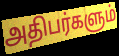
அதிபர்களும்